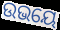
ଉଭୟେ